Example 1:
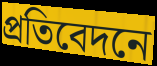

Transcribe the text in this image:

প্ৰতিবেদনে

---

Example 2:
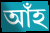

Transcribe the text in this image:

আঁহ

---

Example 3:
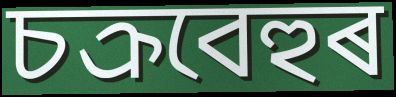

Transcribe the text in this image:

চক্ৰবেহুৰ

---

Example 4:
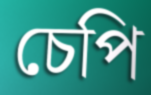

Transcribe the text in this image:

চেপি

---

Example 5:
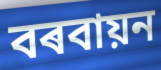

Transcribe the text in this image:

বৰবায়ন